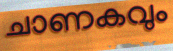
ചാണകവും